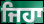
ਜਿਹਾ